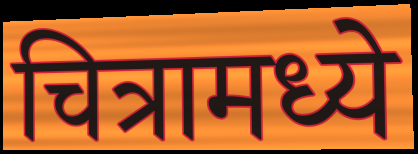
चित्रामध्ये